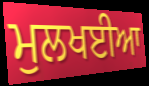
ਮੁਲਖਈਆ